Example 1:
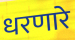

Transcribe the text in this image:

धरणारे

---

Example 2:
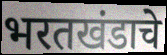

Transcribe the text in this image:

भरतखंडाचे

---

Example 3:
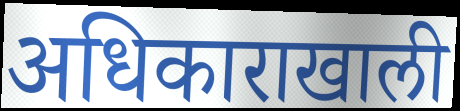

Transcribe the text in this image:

अधिकाराखाली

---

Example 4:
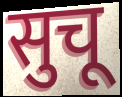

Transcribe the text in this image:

सुचू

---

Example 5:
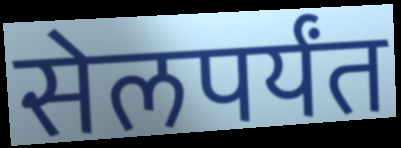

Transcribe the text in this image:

सेलपर्यंत